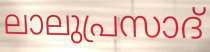
ലാലുപ്രസാദ്